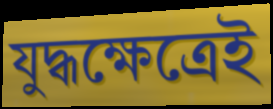
যুদ্ধক্ষেত্রেই